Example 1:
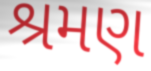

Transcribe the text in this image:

શ્રમણ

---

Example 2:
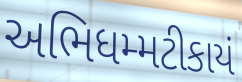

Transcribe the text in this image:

અભિધમ્મટીકાયં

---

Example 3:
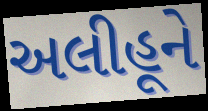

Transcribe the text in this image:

અલીહૂને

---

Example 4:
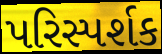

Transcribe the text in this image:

પરિસ્પર્શક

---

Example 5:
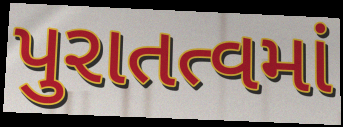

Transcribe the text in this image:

પુરાતત્વમાં